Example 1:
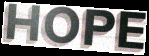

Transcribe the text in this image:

HOPE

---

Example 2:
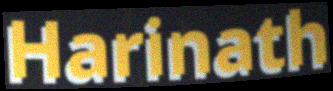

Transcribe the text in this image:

Harinath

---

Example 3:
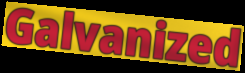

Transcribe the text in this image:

Galvanized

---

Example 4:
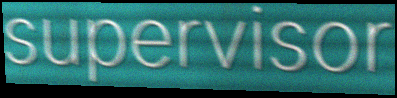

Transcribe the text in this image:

supervisor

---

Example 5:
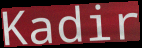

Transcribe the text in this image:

Kadir